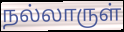
நல்லாருள்